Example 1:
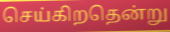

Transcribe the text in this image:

செய்கிறதென்று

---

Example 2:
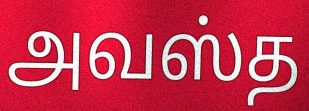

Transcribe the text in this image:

அவஸ்த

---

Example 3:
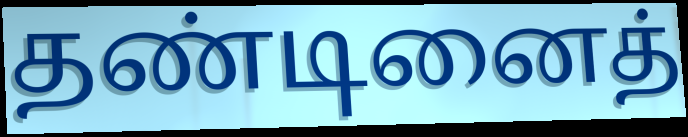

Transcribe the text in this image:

தண்டினைத்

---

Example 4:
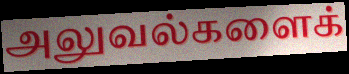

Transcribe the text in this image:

அலுவல்களைக்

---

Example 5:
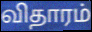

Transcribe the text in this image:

விதாரம்